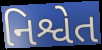
નિશ્વેત